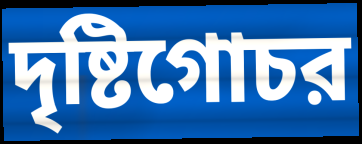
দৃষ্টিগোচর